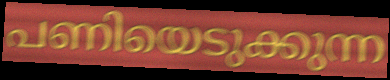
പണിയെടുക്കുന്ന